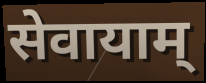
सेवायाम्